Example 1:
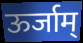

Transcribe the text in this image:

ऊर्जाम्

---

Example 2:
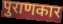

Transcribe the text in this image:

पुराणकार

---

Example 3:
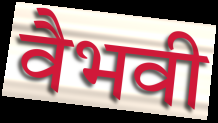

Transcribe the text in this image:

वैभवी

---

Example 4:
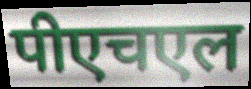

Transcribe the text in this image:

पीएचएल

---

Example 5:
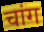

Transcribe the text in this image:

चांग